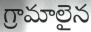
గ్రామాలైన